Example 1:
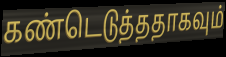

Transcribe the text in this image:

கண்டெடுத்ததாகவும்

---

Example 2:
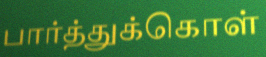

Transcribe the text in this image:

பார்த்துக்கொள்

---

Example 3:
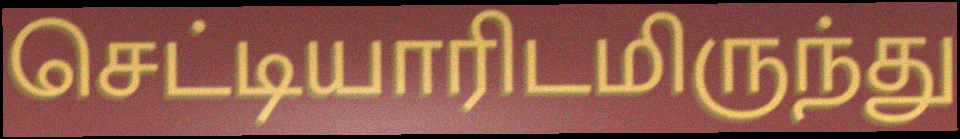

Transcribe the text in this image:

செட்டியாரிடமிருந்து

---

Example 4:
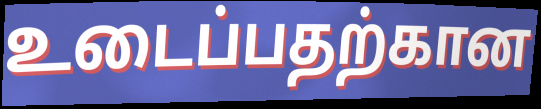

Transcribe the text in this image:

உடைப்பதற்கான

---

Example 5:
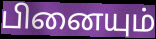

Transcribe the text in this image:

பினையும்